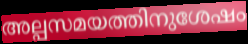
അല്പസമയത്തിനുശേഷം